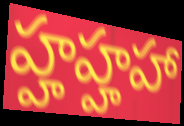
హ్హహ్హహా